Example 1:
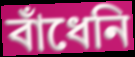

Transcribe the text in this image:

বাঁধেনি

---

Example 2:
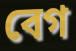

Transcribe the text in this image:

বেগ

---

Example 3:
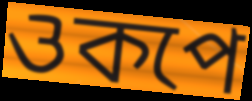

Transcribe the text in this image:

ওকপে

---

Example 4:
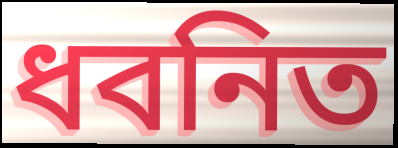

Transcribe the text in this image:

ধবনিত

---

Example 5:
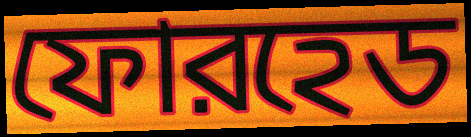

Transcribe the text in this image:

ফোরহেড